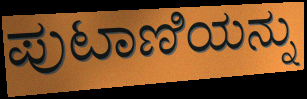
ಪುಟಾಣಿಯನ್ನು